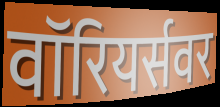
वॉरियर्सवर